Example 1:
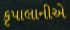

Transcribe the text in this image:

કૃપાલાનીએ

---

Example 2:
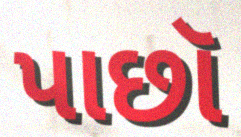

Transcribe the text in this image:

પાછૉ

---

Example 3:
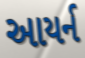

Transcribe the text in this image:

આયર્ન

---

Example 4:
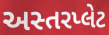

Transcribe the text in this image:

અસ્તરપ્લેટ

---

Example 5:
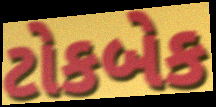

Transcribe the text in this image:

ટોકબેક